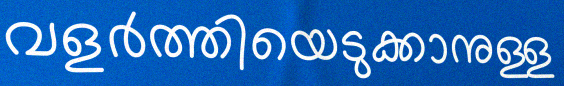
വളർത്തിയെടുക്കാനുള്ള